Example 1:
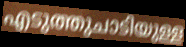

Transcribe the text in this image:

എടുത്തുചാടിയുള്ള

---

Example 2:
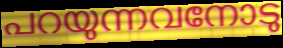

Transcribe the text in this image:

പറയുന്നവനോടു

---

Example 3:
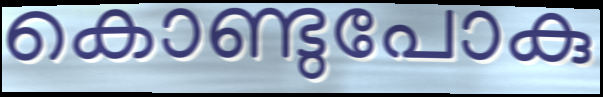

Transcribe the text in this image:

കൊണ്ടുപോകു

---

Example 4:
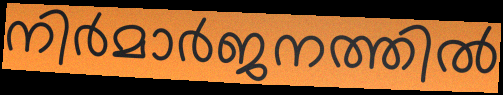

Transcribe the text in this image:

നിർമാർജനത്തിൽ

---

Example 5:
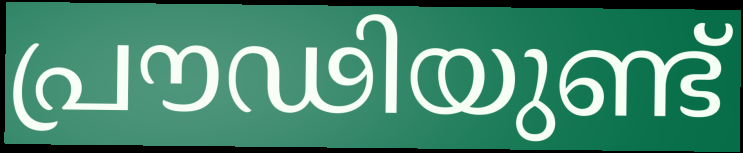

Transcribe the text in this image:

പ്രൗഢിയുണ്ട്